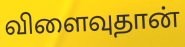
விளைவுதான்